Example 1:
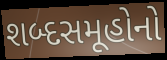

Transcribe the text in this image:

શબ્દસમૂહોનો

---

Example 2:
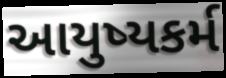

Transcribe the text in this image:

આયુષ્યકર્મ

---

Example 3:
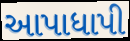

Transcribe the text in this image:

આપાધાપી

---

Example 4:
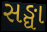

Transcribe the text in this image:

સઙ્ઘા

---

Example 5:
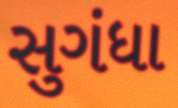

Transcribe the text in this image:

સુગંધા